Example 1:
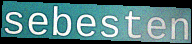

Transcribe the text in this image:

sebesten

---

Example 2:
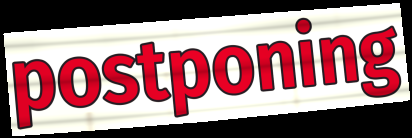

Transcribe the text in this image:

postponing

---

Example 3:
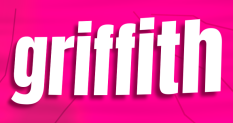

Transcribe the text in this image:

griffith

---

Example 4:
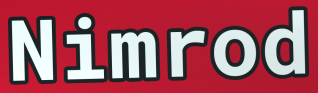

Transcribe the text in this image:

Nimrod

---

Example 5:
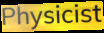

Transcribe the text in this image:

Physicist